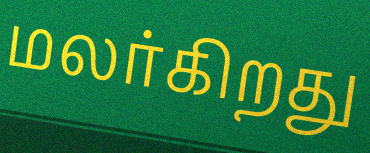
மலர்கிறது